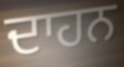
ਦਾਹਨ